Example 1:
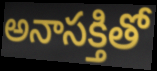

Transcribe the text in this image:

అనాసక్తితో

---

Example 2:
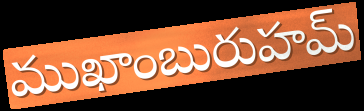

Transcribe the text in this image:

ముఖాంబురుహమ్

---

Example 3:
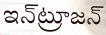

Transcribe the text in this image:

ఇన్‌ట్రూజన్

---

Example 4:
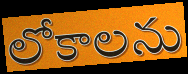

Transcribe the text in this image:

లోకాలను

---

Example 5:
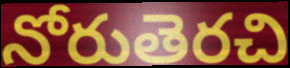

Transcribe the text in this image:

నోరుతెరచి